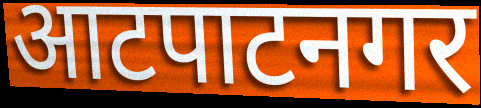
आटपाटनगर